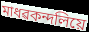
মাধৱকন্দলিয়ে